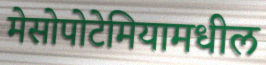
मेसोपोटेमियामधील